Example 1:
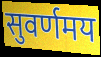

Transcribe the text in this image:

सुवर्णमय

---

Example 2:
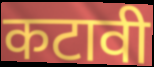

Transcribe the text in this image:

कटावी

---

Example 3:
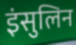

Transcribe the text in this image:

इंसुलिन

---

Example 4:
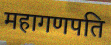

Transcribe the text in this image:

महागणपति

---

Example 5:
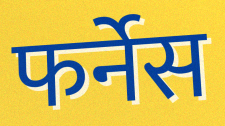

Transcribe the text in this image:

फर्नेस